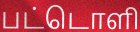
பட்டொளி